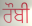
ਰੌਬੀ